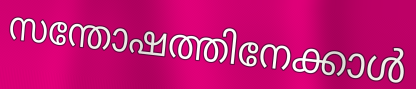
സന്തോഷത്തിനേക്കാൾ